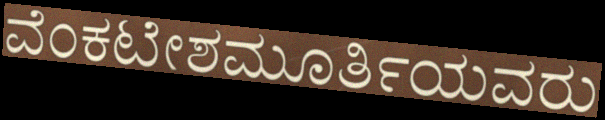
ವೆಂಕಟೇಶಮೂರ್ತಿಯವರು